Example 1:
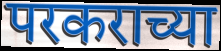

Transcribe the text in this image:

परकराच्या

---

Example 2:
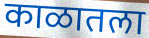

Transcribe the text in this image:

काळातला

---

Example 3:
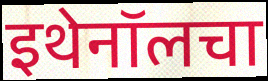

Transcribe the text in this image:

इथेनॉलचा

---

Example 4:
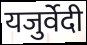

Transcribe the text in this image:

यजुर्वेदी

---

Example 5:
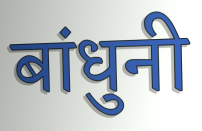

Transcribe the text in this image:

बांधुनी